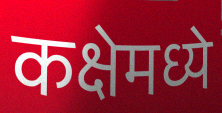
कक्षेमध्ये